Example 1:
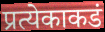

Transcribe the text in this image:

प्रत्येकाकडं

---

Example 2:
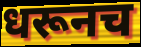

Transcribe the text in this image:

धरूनच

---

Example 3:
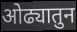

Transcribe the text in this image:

ओढ्यातुन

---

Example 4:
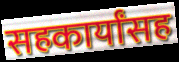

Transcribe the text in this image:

सहकार्यांसह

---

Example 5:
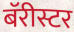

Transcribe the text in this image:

बॅरीस्टर